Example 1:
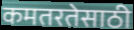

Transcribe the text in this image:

कमतरतेसाठी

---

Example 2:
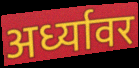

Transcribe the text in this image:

अर्ध्यावर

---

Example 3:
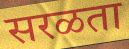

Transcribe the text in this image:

सरळता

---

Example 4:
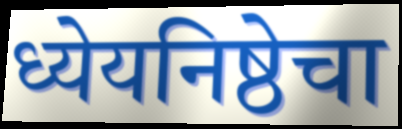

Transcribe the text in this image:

ध्येयनिष्ठेचा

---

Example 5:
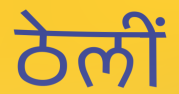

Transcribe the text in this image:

ठेलीं